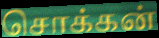
சொக்கன்